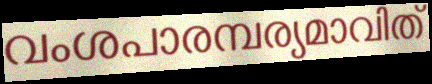
വംശപാരമ്പര്യമാവിത്